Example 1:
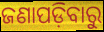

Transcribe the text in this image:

ଜଣାପଡ଼ିବାରୁ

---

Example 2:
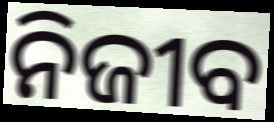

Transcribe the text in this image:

ନିଜୀବ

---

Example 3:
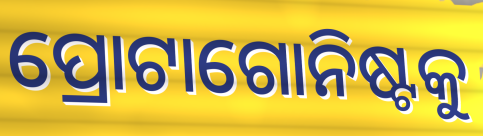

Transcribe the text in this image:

ପ୍ରୋଟାଗୋନିଷ୍ଟକୁ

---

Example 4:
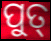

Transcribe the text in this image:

ପୁତ୍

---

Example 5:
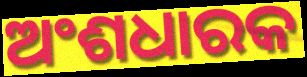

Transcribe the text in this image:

ଅଂଶଧାରକ